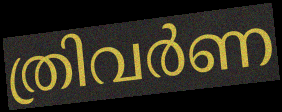
ത്രിവർണ